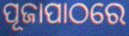
ପୂଜାପାଠରେ